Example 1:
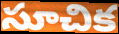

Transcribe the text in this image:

సూచిక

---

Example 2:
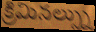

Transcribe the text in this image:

క్రిమినల్స్ను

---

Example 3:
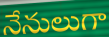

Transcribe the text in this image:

నేనులుగా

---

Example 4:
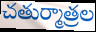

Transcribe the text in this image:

చతుర్మాత్రల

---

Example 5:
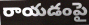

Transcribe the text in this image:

రాయడంపై